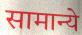
सामान्ये